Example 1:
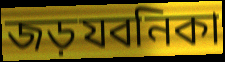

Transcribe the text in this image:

জড়যবনিকা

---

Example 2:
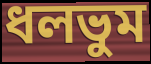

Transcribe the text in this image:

ধলভুম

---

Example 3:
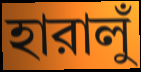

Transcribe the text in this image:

হারালুঁ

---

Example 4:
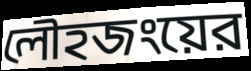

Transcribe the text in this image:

লৌহজংয়ের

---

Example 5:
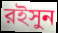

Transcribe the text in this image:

রইসুন